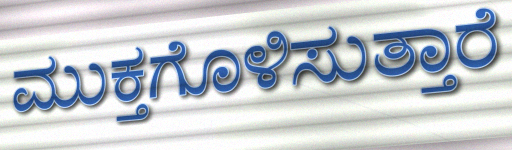
ಮುಕ್ತಗೊಳಿಸುತ್ತಾರೆ